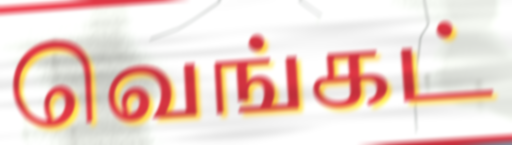
வெங்கட்